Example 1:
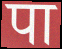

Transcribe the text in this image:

पा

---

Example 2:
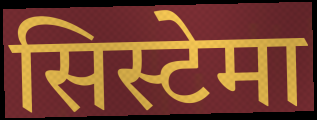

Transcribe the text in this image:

सिस्टेमा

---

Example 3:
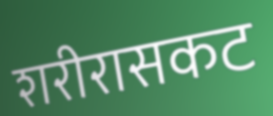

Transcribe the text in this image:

शरीरासकट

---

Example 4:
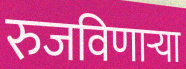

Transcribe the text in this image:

रुजविणाऱ्या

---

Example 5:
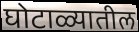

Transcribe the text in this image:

घोटाळ्यातील